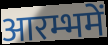
आरम्भमें